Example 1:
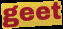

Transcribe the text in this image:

geet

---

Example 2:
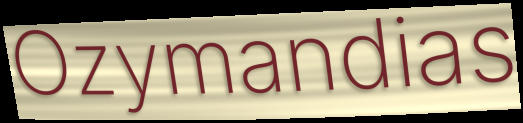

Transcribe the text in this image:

Ozymandias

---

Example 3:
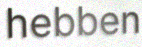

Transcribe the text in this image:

hebben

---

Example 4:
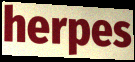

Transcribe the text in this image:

herpes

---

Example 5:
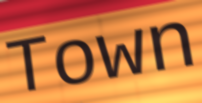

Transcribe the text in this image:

Town